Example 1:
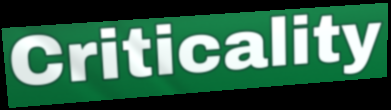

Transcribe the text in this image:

Criticality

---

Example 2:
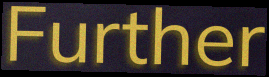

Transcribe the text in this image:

Further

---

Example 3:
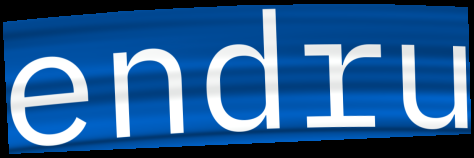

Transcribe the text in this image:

endru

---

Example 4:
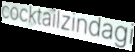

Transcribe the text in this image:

cocktailzindagi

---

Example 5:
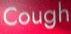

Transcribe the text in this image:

Cough